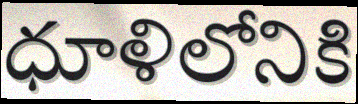
ధూళిలోనికి